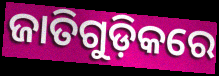
ଜାତିଗୁଡ଼ିକରେ